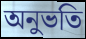
অনুভতি